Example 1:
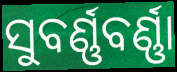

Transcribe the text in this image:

ସୁବର୍ଣ୍ଣବର୍ଣ୍ଣା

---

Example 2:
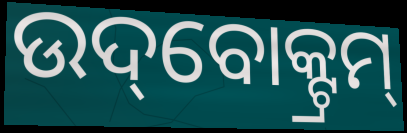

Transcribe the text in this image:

ଉଦ୍‌ବୋକ୍ଟ୍ରମ୍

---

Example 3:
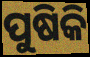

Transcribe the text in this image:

ପୁଷିକି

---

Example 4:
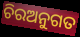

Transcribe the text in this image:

ଚିରଅନୁଗତ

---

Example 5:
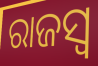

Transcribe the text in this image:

ରାଜସ୍ୱ